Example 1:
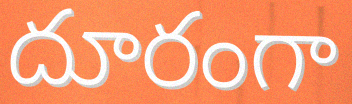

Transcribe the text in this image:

దూరంగా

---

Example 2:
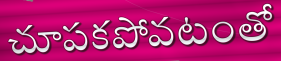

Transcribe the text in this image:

చూపకపోవటంతో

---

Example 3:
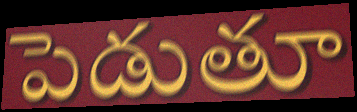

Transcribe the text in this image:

పెడుతూ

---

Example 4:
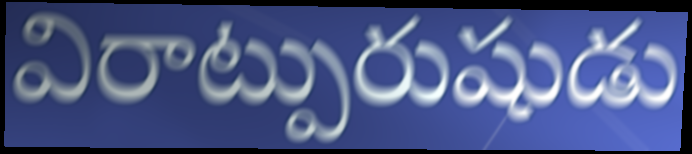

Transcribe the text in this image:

విరాట్పురుషుడు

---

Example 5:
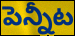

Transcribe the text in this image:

పెన్నీట